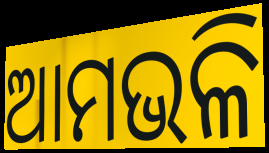
ଆମଭଳି